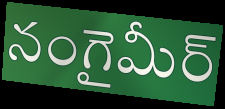
నంగైమీర్